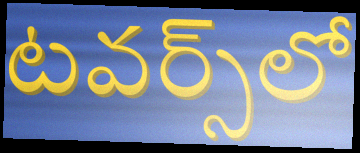
టవర్స్‌లో